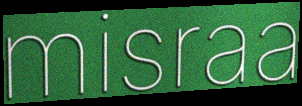
misraa